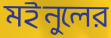
মইনুলের